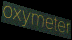
oxymeter